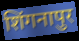
शिंगनापुर